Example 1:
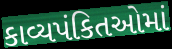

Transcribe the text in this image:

કાવ્યપંકિતઓમાં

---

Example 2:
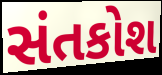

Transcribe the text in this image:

સંતકોશ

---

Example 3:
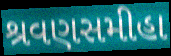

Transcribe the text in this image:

શ્રવણસમીહા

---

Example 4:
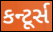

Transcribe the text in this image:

કન્ટૂર્સ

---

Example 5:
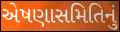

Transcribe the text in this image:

એષણાસમિતિનું